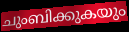
ചുംബിക്കുകയും